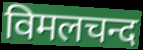
विमलचन्द